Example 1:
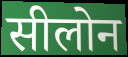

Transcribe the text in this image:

सीलोन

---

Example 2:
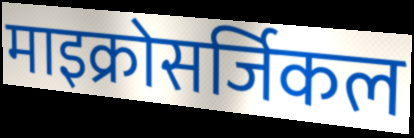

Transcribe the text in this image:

माइक्रोसर्जिकल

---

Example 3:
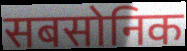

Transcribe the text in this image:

सबसोनिक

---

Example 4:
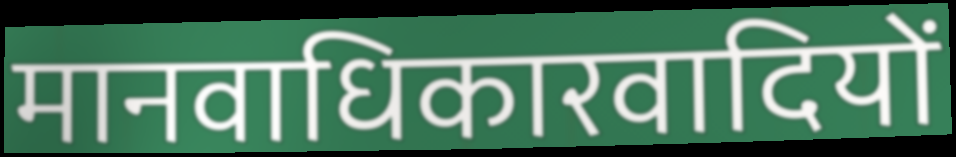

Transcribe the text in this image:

मानवाधिकारवादियों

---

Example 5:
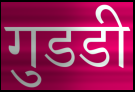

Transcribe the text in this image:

गुडडी